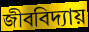
জীববিদ্যায়